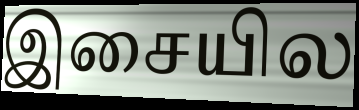
இசையில